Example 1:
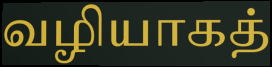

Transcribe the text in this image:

வழியாகத்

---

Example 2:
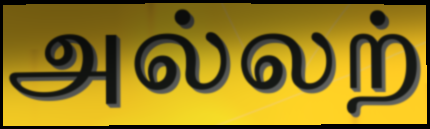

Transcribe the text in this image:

அல்லற்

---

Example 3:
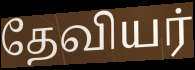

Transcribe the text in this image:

தேவியர்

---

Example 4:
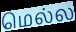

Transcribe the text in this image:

மெல்ல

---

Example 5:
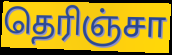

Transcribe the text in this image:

தெரிஞ்சா